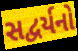
સદ્વર્યનો